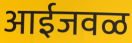
आईजवळ